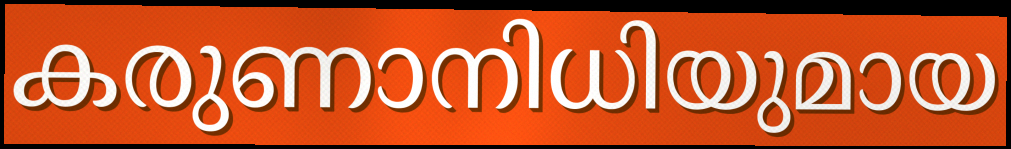
കരുണാനിധിയുമായ